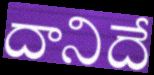
దానిదే